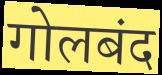
गोलबंद